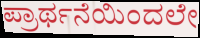
ಪ್ರಾರ್ಥನೆಯಿಂದಲೇ